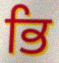
ਭਿ